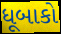
ધૂબાકો